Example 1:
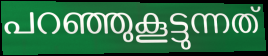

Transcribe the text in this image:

പറഞ്ഞുകൂട്ടുന്നത്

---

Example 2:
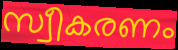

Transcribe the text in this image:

സ്വീകരണം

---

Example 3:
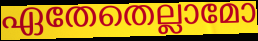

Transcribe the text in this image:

ഏതേതെല്ലാമോ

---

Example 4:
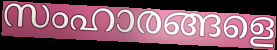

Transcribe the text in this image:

സംഹാരങ്ങളെ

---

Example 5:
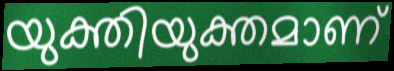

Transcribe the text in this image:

യുക്തിയുക്തമാണ്